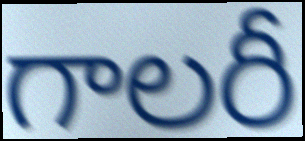
గాలరీ